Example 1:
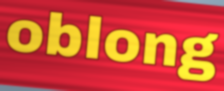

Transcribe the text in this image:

oblong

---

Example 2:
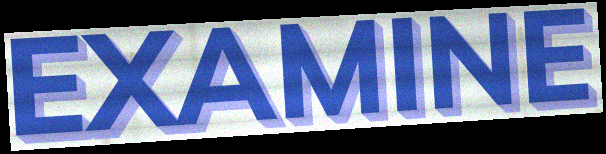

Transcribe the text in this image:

EXAMINE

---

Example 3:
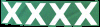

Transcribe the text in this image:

xxxx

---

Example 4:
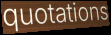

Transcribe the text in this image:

quotations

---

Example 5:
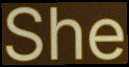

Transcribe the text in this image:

She